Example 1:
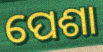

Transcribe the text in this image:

ପେଶା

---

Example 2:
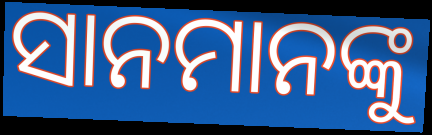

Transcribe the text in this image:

ସାନମାନଙ୍କୁ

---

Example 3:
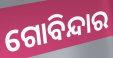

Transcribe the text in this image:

ଗୋବିନ୍ଦାର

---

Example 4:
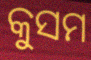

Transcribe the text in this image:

କୁସମ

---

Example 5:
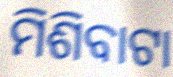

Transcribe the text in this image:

ମିଶିବାଟା